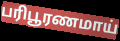
பரிபூரணமாய்